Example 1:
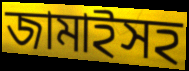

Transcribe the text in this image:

জামাইসহ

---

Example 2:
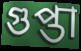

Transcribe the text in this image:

গুপ্তা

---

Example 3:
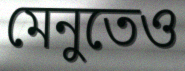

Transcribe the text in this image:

মেনুতেও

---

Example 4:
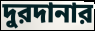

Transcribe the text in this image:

দুরদানার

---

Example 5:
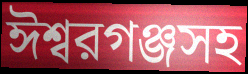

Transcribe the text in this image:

ঈশ্বরগঞ্জসহ